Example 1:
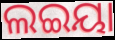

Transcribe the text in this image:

ଲଇୟା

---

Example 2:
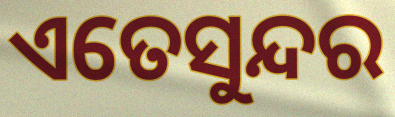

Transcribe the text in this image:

ଏତେସୁନ୍ଦର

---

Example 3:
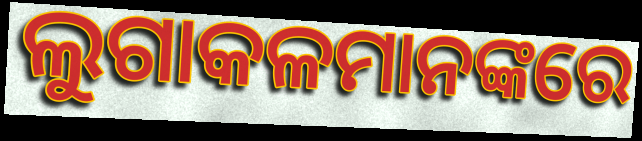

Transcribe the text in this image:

ଲୁଗାକଳମାନଙ୍କରେ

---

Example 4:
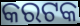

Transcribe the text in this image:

କରଟକ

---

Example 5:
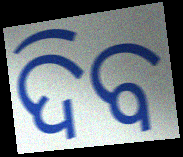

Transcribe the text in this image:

ଦିବ